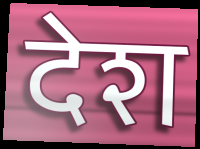
देश